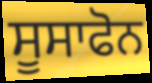
ਸੂਸਾਫੋਨ